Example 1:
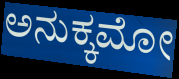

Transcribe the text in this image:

ಅನುಕ್ಕಮೋ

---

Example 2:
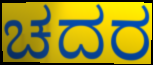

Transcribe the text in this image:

ಚದರ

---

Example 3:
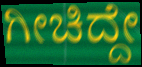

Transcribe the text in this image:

ಗೀಚಿದ್ದೇ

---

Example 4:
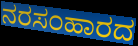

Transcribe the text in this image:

ನರಸಂಹಾರದ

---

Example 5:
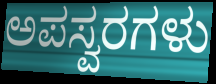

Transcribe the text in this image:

ಅಪಸ್ವರಗಳು